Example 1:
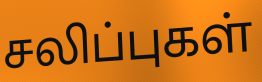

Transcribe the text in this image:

சலிப்புகள்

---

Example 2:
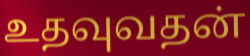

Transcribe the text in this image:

உதவுவதன்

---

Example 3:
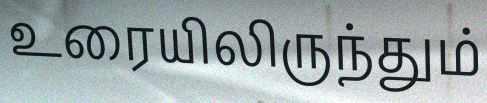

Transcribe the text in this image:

உரையிலிருந்தும்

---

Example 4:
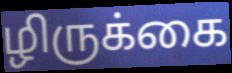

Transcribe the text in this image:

ழிருக்கை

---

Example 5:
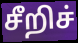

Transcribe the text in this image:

சீறிச்